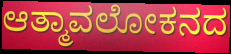
ಆತ್ಮಾವಲೋಕನದ